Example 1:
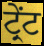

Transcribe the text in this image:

ਟ੍ਰੇਂਟ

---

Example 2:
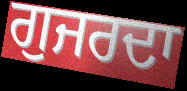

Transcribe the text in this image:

ਗੁਜਰਦਾ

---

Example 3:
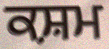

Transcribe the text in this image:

ਕ਼ਸ਼ਮ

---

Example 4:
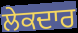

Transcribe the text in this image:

ਲੇਕਦਾਰ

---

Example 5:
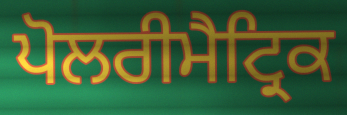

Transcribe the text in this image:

ਪੋਲਰੀਮੈਟ੍ਰਿਕ